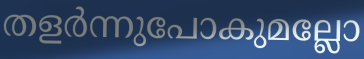
തളർന്നുപോകുമല്ലോ